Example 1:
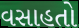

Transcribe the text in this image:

વસાહતો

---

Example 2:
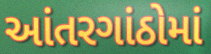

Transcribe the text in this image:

આંતરગાંઠોમાં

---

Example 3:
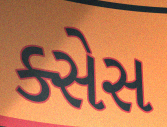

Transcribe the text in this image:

ક્સેસ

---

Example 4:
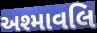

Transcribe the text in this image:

અશ્માવલિ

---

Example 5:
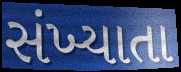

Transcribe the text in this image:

સંખ્યાતા